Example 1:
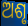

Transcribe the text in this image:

ଅଶୃ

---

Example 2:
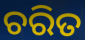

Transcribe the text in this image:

ଚରିତ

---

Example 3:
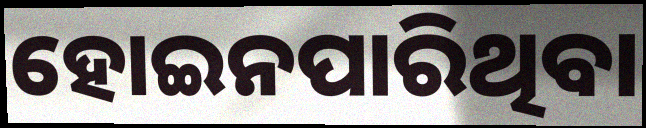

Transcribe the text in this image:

ହୋଇନପାରିଥିବା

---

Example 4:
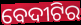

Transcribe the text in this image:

ବେଦୀଟିର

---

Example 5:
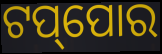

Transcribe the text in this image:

ଟପ୍‌ପୋର